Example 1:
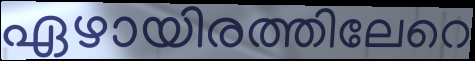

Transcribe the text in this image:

ഏഴായിരത്തിലേറെ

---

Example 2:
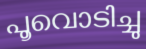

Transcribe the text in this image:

പൂവൊടിച്ചു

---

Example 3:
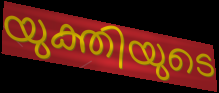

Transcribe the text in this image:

യുക്തിയുടെ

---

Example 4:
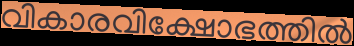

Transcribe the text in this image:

വികാരവിക്ഷോഭത്തിൽ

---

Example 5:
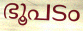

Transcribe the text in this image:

ഭൂപടം